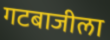
गटबाजीला